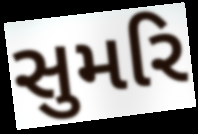
સુમરિ